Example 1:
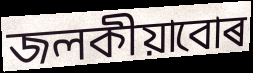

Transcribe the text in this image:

জলকীয়াবোৰ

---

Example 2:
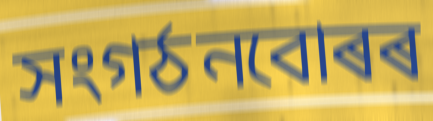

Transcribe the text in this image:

সংগঠনবোৰৰ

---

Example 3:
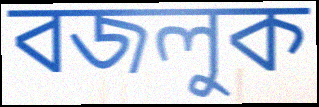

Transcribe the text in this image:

বজলুক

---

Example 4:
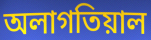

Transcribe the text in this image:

অলাগতিয়াল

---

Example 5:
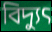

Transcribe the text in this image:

বিদ্যুৎ